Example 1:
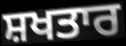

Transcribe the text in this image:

ਸ਼ਖਤਾਰ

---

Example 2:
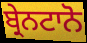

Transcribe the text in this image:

ਬ੍ਰੇਨਟਾਨੋ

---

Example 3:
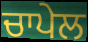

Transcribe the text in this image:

ਚਾਪੇਲ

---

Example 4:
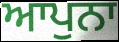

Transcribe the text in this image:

ਆਪੁਨਾ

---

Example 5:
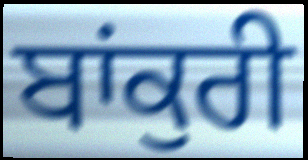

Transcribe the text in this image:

ਬਾਂਕੁਰੀ